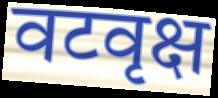
वटवृक्ष